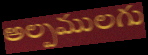
అల్పములగు